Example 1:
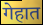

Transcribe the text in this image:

गेहात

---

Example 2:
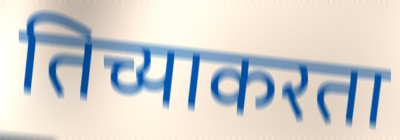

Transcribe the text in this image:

तिच्याकरता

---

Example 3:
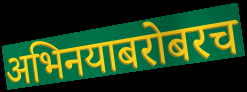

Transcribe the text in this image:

अभिनयाबरोबरच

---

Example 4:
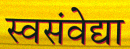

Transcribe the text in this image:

स्वसंवेद्या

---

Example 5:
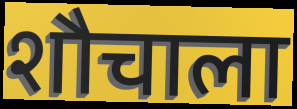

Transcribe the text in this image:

शौचाला